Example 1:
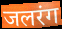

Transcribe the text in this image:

जलरंग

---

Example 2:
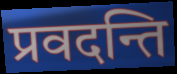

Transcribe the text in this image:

प्रवदन्ति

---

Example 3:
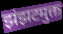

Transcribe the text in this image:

झंझटमुक्त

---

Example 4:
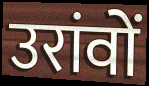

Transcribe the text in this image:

उरांवों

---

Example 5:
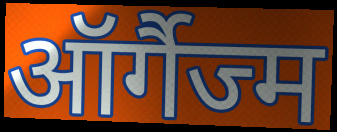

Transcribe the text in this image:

ऑर्गैज्म